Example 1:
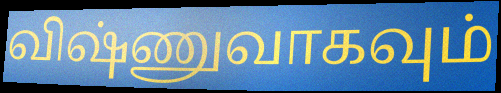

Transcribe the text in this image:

விஷ்ணுவாகவும்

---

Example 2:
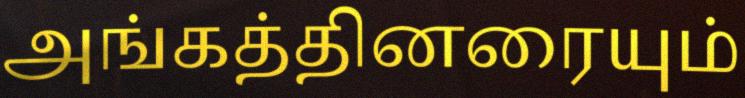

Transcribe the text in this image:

அங்கத்தினரையும்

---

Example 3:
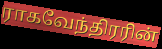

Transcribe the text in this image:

ராகவேந்திரரின்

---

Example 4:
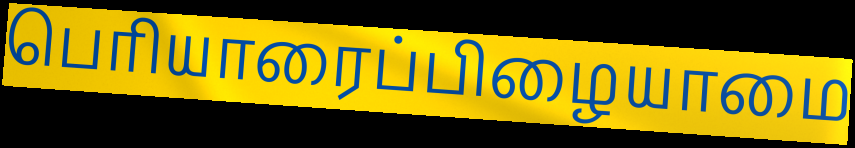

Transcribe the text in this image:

பெரியாரைப்பிழையாமை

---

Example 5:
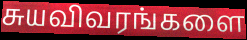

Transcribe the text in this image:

சுயவிவரங்களை